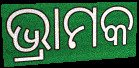
ଭ୍ରାମକ